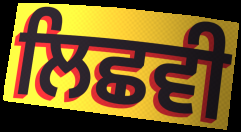
ਲਿਛਵੀ